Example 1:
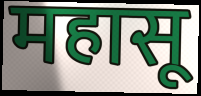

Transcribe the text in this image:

महासू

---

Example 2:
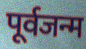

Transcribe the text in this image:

पूर्वजन्‍म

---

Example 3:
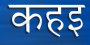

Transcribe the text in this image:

कहइ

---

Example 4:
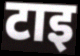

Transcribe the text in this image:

टाइ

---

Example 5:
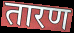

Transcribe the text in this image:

तारण